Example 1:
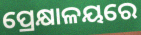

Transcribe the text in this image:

ପ୍ରେକ୍ଷାଳୟରେ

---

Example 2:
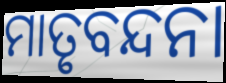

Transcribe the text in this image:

ମାତୃବନ୍ଦନା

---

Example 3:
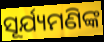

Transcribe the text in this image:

ସୂର୍ଯ୍ୟମଣିଙ୍କ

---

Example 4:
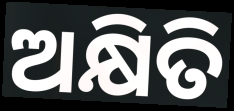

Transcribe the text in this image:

ଅକ୍ଷିତି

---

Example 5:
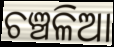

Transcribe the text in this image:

ଚଞ୍ଚଳିଆ